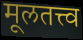
मूलतत्त्व